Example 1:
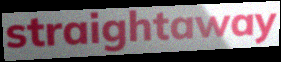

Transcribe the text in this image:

straightaway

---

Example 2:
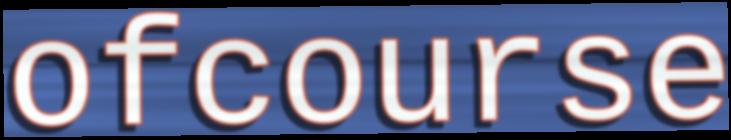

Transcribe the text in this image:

ofcourse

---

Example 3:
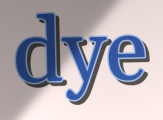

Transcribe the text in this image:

dye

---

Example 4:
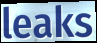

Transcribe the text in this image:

leaks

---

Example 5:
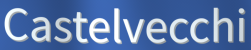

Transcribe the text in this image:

Castelvecchi